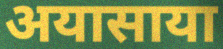
अयासाया